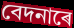
বেদনাৰে